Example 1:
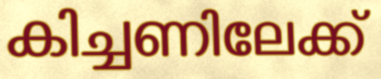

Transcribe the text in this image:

കിച്ചണിലേക്ക്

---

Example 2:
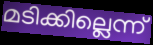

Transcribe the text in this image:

മടിക്കില്ലെന്ന്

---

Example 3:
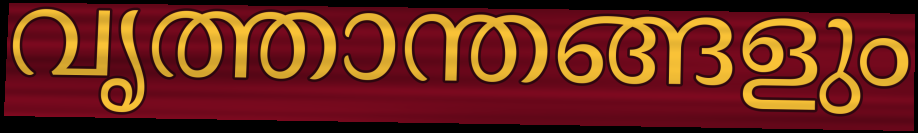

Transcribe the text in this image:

വൃത്താന്തങ്ങളും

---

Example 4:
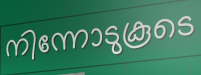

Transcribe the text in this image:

നിന്നോടുകൂടെ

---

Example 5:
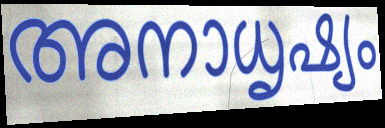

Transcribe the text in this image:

അനാധൃഷ്യം